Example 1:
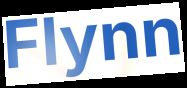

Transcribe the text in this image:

Flynn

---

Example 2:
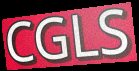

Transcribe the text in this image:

CGLS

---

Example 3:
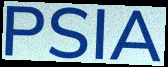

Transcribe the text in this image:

PSIA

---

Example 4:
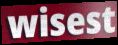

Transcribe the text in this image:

wisest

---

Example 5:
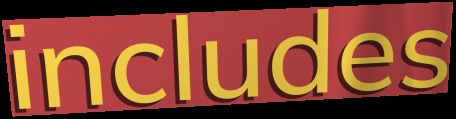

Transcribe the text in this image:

includes